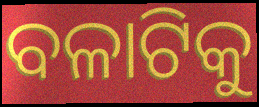
ବଳାଟିକୁ